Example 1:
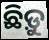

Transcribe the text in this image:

ଛିଡ଼ୁ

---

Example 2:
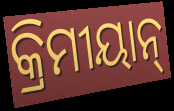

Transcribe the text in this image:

କ୍ରିମୀୟାନ୍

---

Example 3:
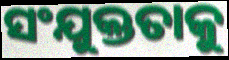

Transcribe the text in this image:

ସଂଯୁକ୍ତତାକୁ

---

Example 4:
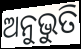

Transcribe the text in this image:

ଅନୁଭୁତି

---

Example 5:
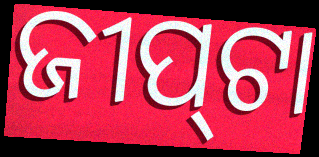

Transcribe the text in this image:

ଜୀପ୍‍ଟା